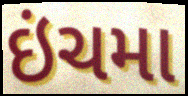
ઇંચમા